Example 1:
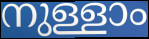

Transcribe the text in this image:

നുള്ളാം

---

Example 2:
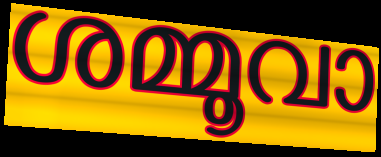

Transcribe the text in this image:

ശമ്മൂവാ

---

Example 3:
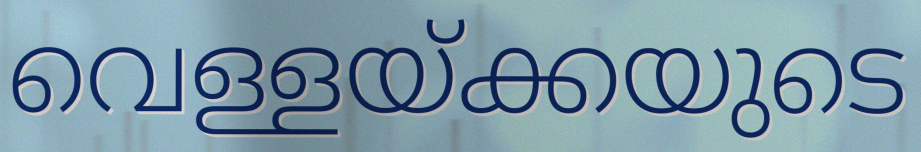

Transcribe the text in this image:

വെള്ളയ്ക്കയുടെ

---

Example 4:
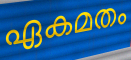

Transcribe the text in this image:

ഏകമതം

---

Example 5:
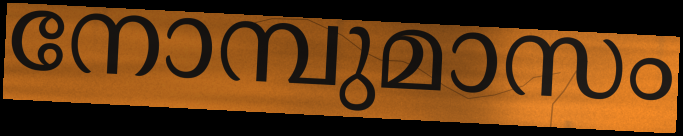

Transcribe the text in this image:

നോമ്പുമാസം